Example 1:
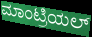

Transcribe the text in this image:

ಮಾಂಟ್ರಿಯಲ್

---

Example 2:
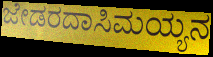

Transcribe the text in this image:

ಜೇಡರದಾಸಿಮಯ್ಯನ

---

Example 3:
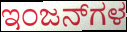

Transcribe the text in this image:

ಇಂಜನ್‌ಗಳ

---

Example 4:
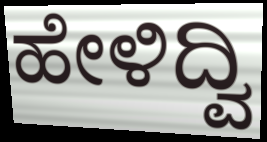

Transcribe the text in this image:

ಹೇಳಿದ್ವಿ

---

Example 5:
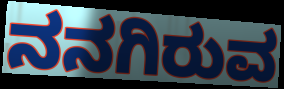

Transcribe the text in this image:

ನನಗಿರುವ